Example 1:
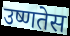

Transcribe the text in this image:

उष्णतेस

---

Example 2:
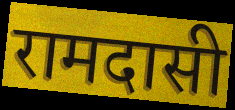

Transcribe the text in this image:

रामदासी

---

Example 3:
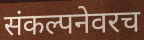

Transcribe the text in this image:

संकल्पनेवरच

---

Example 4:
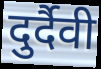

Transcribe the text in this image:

दुर्दैवी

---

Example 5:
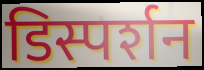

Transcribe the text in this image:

डिस्पर्शन